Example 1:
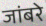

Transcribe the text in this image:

जांबरे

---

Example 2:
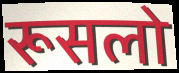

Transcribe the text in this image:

रूसलो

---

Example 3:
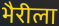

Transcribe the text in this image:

भैरीला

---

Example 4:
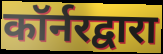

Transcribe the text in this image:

कॉर्नरद्वारा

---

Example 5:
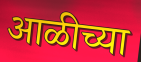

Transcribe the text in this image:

आळीच्या